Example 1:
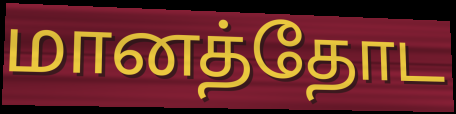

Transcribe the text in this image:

மானத்தோட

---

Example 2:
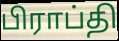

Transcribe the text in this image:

பிராப்தி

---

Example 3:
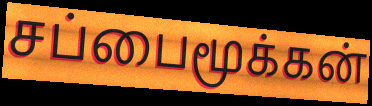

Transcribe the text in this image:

சப்பைமூக்கன்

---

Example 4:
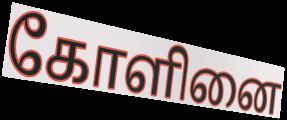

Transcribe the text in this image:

கோளினை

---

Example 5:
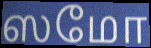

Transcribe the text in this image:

ஸமோ